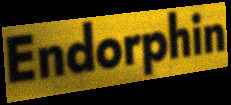
Endorphin